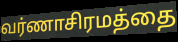
வர்ணாசிரமத்தை